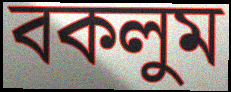
বকলুম